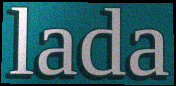
lada